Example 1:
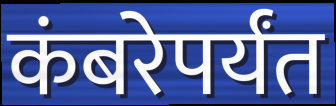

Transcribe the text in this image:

कंबरेपर्यंत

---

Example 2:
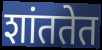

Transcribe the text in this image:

शांततेत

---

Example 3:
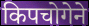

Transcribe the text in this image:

किपचोगेने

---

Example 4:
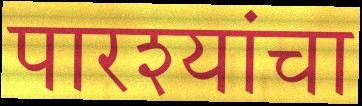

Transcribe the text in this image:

पारश्यांचा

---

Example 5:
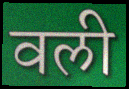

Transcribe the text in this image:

वली